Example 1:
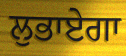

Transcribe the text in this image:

ਲੁਭਾਏਗਾ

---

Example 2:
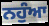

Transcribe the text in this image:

ਨਹੁੰਆ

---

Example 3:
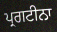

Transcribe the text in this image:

ਪ੍ਰਗਟੀਨਾ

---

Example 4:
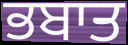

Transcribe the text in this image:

ਭਬਾਤ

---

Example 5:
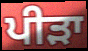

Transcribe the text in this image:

ਪੀੜਾ